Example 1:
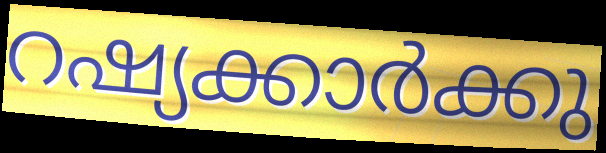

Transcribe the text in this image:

റഷ്യക്കാർക്കു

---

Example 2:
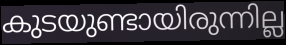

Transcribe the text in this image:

കുടയുണ്ടായിരുന്നില്ല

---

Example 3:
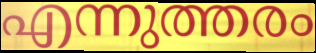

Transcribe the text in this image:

എന്നുത്തരം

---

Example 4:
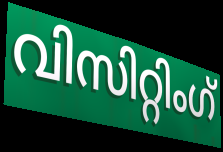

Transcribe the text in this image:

വിസിറ്റിംഗ്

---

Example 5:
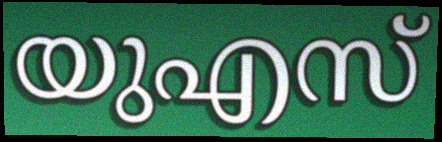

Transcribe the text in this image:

യുഎസ്